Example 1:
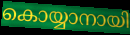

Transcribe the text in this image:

കൊയ്യാനായി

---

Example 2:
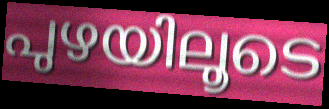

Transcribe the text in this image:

പുഴയിലൂടെ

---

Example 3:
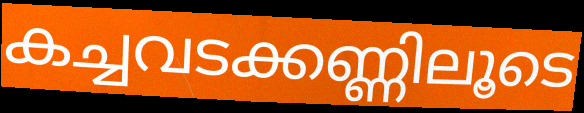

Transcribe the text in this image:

കച്ചവടക്കണ്ണിലൂടെ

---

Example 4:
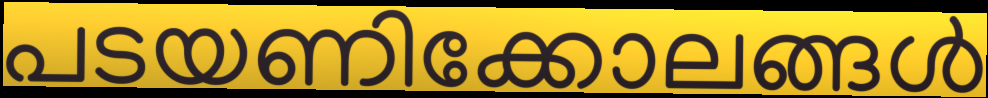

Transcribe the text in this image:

പടയണിക്കോലങ്ങൾ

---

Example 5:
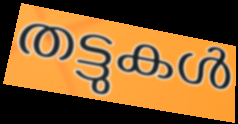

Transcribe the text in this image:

തട്ടുകൾ